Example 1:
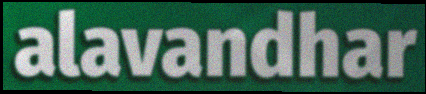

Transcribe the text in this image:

alavandhar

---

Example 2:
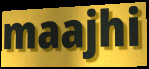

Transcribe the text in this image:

maajhi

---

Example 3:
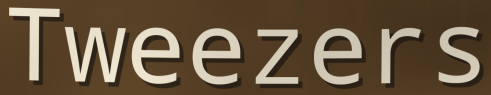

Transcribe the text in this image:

Tweezers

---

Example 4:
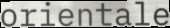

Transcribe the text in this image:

orientale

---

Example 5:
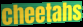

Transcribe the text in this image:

cheetahs